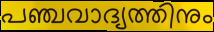
പഞ്ചവാദ്യത്തിനും